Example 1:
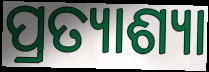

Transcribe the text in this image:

ପ୍ରତ୍ୟାଶ୍ୟା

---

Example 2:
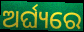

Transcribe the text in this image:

ଅର୍ଘ୍ୟରେ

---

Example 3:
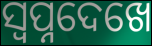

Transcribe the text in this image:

ସ୍ୱପ୍ନଦେଖେ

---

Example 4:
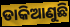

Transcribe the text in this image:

ଡାକିଆଣୁଛି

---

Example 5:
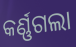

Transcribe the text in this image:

କର୍ଣ୍ଣଗଲା